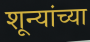
शून्यांच्या